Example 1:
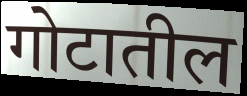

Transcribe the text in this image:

गोटातील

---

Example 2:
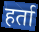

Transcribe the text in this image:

हर्ता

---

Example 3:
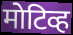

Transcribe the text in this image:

मोटिव्ह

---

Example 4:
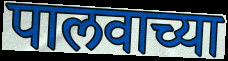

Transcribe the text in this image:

पालवाच्या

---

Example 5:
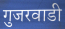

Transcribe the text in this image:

गुजरवाडी